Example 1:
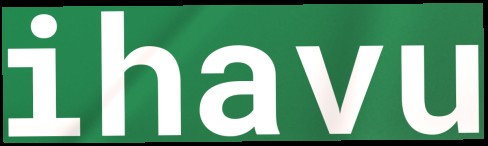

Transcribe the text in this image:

ihavu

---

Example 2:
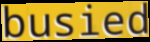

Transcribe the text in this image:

busied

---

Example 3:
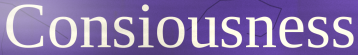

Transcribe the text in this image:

Consiousness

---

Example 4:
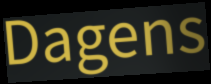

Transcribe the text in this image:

Dagens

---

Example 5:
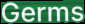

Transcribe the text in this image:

Germs